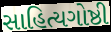
સાહિત્યગોષ્ઠી